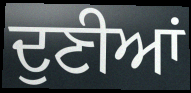
ਦੁਣੀਆਂ